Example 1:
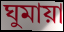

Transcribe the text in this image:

ঘুমায়া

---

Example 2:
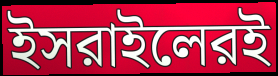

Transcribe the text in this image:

ইসরাইলেরই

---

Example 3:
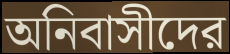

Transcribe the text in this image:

অনিবাসীদের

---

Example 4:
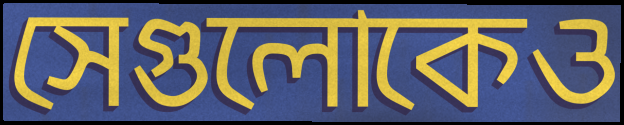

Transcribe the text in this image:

সেগুলোকেও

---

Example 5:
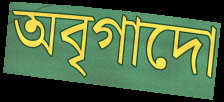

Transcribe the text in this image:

অবৃগাদো